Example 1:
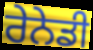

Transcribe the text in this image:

ਰੇਨੇਡੀ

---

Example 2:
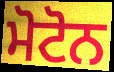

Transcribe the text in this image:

ਮੋਟੋਨ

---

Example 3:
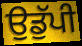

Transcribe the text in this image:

ਉਡੁੱਪੀ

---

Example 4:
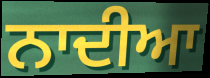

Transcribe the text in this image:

ਨਾਦੀਆ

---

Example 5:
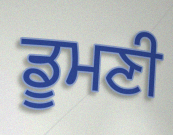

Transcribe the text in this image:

ਡੂਮਣੀ